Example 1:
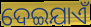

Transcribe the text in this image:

ଦେଇଯାଏଁ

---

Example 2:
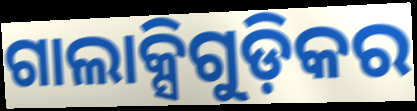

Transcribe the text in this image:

ଗାଲାକ୍ସିଗୁଡ଼ିକର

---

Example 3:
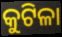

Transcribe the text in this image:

କୁଟିଳା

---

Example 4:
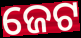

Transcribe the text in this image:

ଜେଟ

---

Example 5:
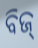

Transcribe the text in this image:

ବିଜ୍